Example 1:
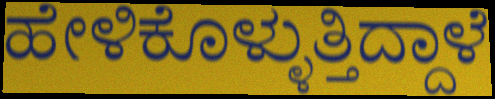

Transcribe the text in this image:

ಹೇಳಿಕೊಳ್ಳುತ್ತಿದ್ದಾಳೆ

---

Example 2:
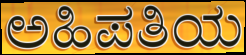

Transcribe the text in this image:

ಅಹಿಪತಿಯ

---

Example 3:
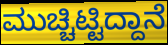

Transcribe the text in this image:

ಮುಚ್ಚಿಟ್ಟಿದ್ದಾನೆ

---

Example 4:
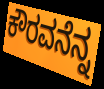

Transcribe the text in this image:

ಕೌರವನೆನ್ನ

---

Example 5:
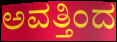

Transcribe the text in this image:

ಅವತ್ತಿಂದ